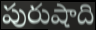
పురుషాది